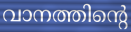
വാനത്തിന്റെ